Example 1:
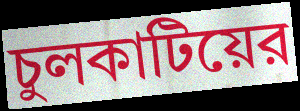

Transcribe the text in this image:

চুলকাটিয়ের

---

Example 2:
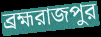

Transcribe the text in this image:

ব্রহ্মরাজপুর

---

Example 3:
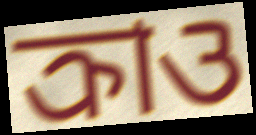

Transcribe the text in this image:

ক্রাও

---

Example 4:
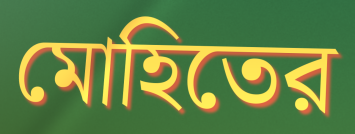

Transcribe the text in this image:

মোহিতের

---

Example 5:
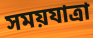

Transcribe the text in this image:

সময়যাত্রা